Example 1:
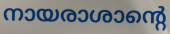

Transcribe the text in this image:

നായരാശാന്റെ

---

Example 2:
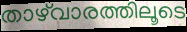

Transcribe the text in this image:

താഴ്‌വാരത്തിലൂടെ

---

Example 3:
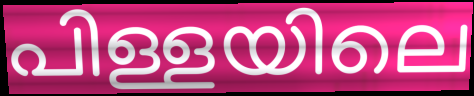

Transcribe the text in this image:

പിള്ളയിലെ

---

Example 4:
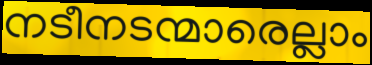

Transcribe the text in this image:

നടീനടന്മാരെല്ലാം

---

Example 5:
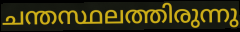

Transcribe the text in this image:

ചന്തസ്ഥലത്തിരുന്നു